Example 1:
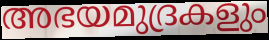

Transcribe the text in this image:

അഭയമുദ്രകളും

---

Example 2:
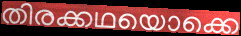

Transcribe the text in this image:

തിരക്കഥയൊക്കെ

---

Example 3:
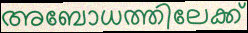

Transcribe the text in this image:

അബോധത്തിലേക്ക്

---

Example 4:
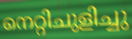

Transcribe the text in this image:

നെറ്റിചുളിച്ചു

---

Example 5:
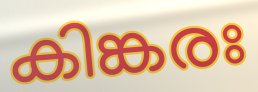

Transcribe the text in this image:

കിങ്കരഃ